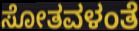
ಸೋತವಳಂತೆ